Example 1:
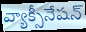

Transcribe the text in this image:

వ్యాక్సీనేషన్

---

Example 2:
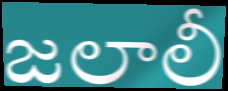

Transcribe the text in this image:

జలాలీ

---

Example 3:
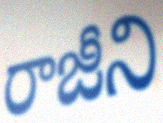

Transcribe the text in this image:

రాజీని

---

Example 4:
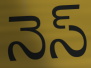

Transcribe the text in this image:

నెస్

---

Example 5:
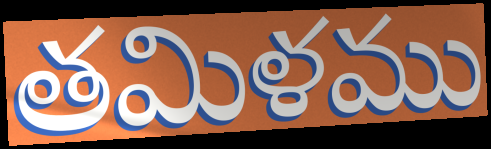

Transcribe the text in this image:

తమిళము